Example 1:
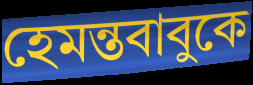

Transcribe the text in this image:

হেমন্তবাবুকে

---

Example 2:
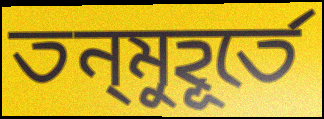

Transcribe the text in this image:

তন্‌মুহূর্তে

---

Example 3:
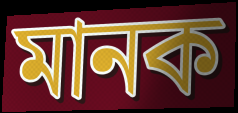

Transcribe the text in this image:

মানক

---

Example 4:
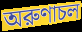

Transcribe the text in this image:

অরুণাচল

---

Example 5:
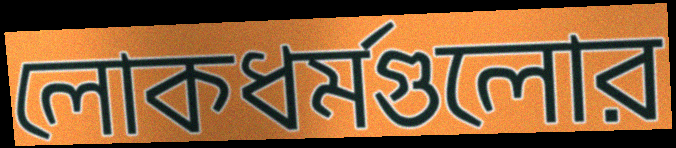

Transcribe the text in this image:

লোকধর্মগুলোর